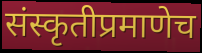
संस्कृतीप्रमाणेच